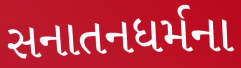
સનાતનધર્મના